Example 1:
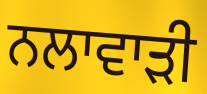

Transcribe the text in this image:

ਨਲਾਵਾੜੀ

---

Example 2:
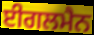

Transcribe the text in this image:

ਈਗਲਮੈਨ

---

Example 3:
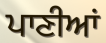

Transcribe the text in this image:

ਪਾਣੀਆਂ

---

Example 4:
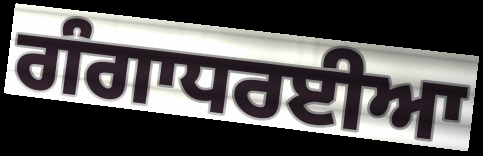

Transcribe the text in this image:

ਗੰਗਾਧਰਈਆ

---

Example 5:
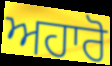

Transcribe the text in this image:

ਅਹਾਰੋ